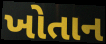
ખોતાન